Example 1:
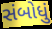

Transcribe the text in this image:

સંબોધું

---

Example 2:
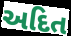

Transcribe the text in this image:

અદિત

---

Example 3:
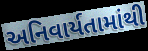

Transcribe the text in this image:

અનિવાર્યતામાંથી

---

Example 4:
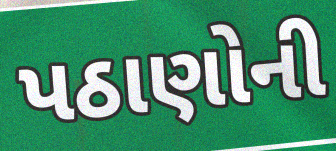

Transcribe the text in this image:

પઠાણોની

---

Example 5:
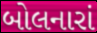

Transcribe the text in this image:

બોલનારાં